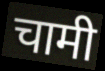
चामी